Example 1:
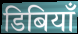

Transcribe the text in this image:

डिबियाँ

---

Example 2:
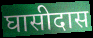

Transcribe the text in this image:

घासीदास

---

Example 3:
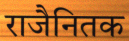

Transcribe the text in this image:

राजैनितक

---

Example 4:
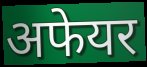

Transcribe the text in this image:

अफेयर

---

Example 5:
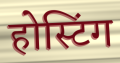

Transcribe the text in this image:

होस्टिंग